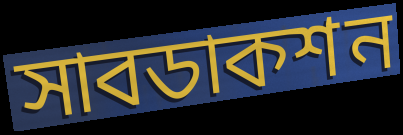
সাবডাকশন